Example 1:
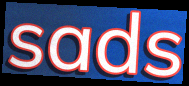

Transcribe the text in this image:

sads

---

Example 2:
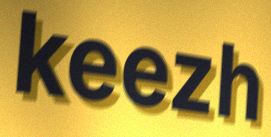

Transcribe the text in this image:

keezh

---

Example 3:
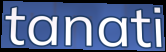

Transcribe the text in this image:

tanati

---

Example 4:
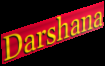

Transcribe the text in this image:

Darshana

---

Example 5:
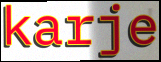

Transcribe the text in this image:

karje